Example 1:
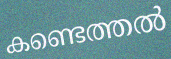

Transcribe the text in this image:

കണ്ടെത്തൽ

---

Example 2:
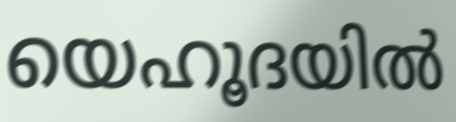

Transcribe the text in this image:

യെഹൂദയിൽ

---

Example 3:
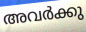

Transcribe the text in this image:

അവർക്കു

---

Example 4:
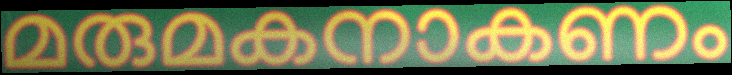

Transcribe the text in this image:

മരുമകനാകണം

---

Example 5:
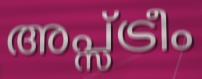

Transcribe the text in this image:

അപ്സ്ട്രീം